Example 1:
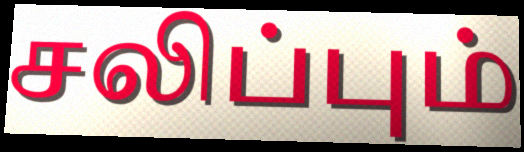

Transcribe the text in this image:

சலிப்பும்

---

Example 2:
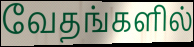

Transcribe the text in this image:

வேதங்களில்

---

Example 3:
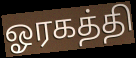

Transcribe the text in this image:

ஓரகத்தி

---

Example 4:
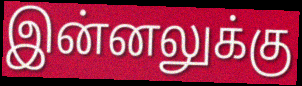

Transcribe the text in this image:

இன்னலுக்கு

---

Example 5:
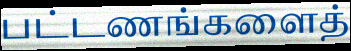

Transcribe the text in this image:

பட்டணங்களைத்